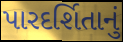
પારદર્શિતાનું